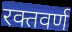
रक्तवर्ण